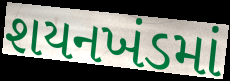
શયનખંડમાં